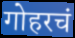
गोहरचं